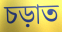
চড়াত